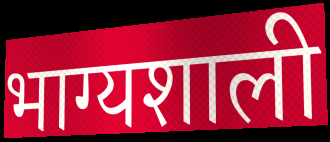
भाग्यशाली